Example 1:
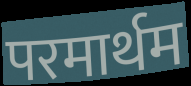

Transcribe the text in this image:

परमार्थम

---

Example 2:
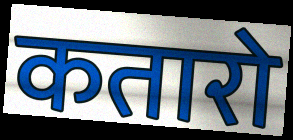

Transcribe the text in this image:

कतारो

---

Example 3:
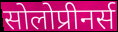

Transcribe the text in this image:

सोलोप्रीनर्स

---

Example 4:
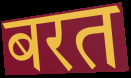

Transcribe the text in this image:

बरत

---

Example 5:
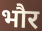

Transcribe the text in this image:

भौर